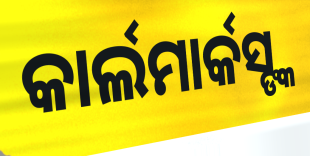
କାର୍ଲମାର୍କସ୍ଙ୍କ